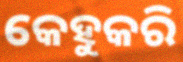
କେହୁକରି